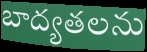
బాద్యతలను